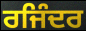
ਰਜਿੰਦਰ